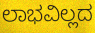
ಲಾಭವಿಲ್ಲದ